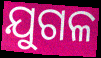
ଯୁଗଳ